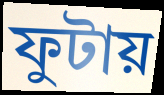
ফুটায়